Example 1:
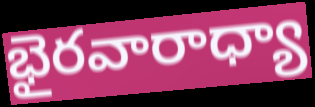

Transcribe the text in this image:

భైరవారాధ్యా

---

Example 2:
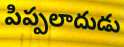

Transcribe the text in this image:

పిప్పలాదుడు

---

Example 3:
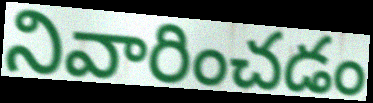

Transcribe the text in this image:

నివారించడం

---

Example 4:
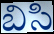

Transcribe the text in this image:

బిసి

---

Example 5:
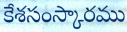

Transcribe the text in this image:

కేశసంస్కారము